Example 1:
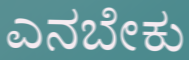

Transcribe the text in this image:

ಎನಬೇಕು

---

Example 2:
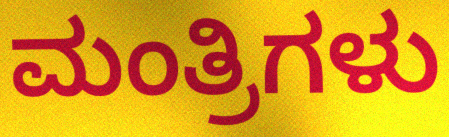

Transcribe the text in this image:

ಮಂತ್ರಿಗಳು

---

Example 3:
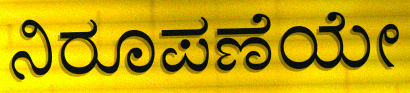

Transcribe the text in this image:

ನಿರೂಪಣೆಯೇ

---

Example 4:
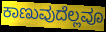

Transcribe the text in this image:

ಕಾಣುವುದೆಲ್ಲವೂ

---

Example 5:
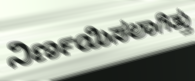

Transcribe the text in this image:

ನಿರ್ಣಯಿಸಲಾಗಿತ್ತು